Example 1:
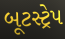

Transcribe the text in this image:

બૂટસ્ટ્રેપ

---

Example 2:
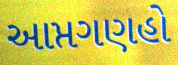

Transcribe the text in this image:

આપ્તગણહો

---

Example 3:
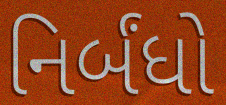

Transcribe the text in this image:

નિર્બંધો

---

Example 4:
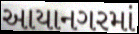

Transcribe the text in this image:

આયાનગરમાં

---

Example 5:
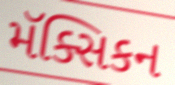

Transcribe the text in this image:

મૅક્સિકન